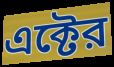
এক্টের